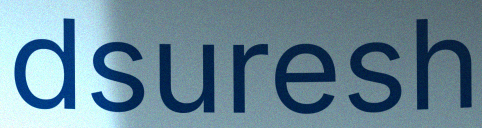
dsuresh